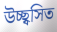
উচ্ছ্বসিত